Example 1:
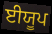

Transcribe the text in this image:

ਈਯੂਪ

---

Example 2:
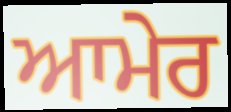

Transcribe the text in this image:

ਆਮੇਰ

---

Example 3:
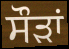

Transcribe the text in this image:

ਸੌੜਾਂ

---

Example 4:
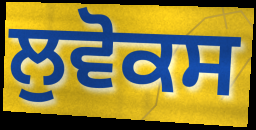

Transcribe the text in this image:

ਲੁਵੋਕਸ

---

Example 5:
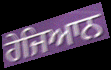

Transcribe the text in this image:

ਹੇਜਿਆਨ